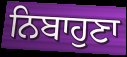
ਨਿਬਾਹੁਣਾ